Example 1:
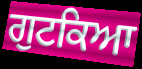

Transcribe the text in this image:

ਗੁਟਕਿਆ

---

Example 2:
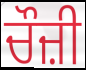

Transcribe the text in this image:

ਚੌਜ਼ੀ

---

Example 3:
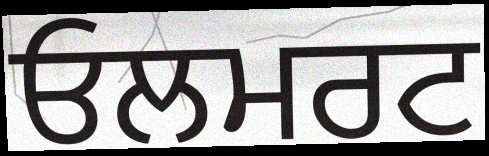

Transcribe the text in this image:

ਓਲਮਰਟ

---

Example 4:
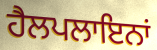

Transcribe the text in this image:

ਹੈਲਪਲਾਇਨਾਂ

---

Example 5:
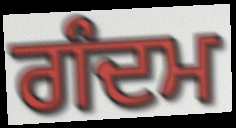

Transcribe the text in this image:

ਗੰਦਮ